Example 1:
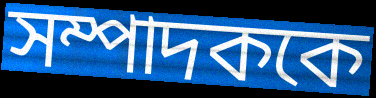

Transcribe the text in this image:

সম্পাদককে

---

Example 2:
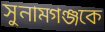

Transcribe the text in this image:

সুনামগঞ্জকে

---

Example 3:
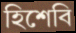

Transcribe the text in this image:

হিশেবি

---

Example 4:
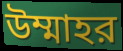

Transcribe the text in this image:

উম্মাহর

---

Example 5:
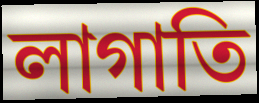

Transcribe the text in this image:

লাগাতি